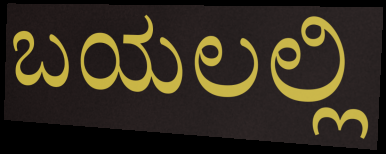
ಬಯಲಲ್ಲಿ